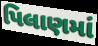
પિલાણમાં